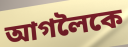
আগলৈকে